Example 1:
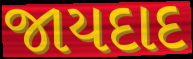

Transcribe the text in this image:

જાયદાદ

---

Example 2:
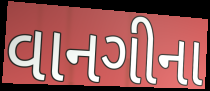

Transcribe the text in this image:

વાનગીના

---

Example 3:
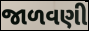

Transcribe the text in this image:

જાળવણી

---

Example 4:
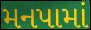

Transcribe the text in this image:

મનપામાં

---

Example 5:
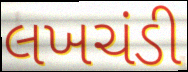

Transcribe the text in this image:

લખચંડી